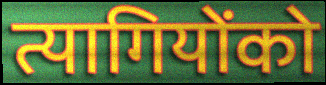
त्यागियोंको